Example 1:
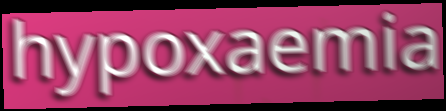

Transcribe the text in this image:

hypoxaemia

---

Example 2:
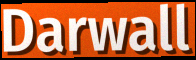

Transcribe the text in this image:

Darwall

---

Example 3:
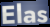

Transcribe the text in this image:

Elas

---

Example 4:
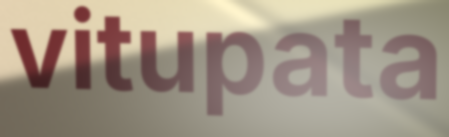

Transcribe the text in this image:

vitupata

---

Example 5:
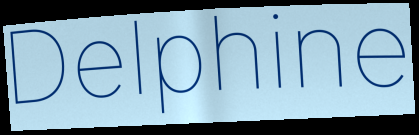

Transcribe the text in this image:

Delphine